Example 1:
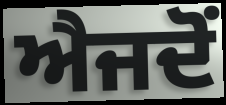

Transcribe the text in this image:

ਐਜਦੋਂ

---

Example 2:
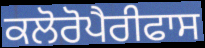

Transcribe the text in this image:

ਕਲੋਰੋਪੈਰੀਫਾਸ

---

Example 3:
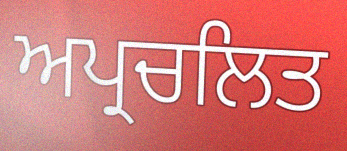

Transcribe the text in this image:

ਅਪ੍ਰਚਲਿਤ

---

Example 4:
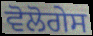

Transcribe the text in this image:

ਵੋਲੋਗੇਸ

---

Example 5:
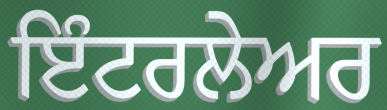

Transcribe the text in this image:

ਇੰਟਰਲੇਅਰ